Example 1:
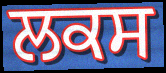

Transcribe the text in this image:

ਲਕਸ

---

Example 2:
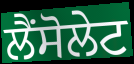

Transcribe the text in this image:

ਲੈਂਸੋਲੇਟ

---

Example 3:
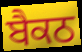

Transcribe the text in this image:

ਬੈਕਠ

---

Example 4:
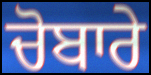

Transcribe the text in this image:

ਚੋਬਾਰੇ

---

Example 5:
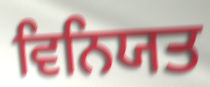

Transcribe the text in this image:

ਵਿਨਿਯਤ